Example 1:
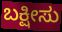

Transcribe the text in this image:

ಬಕ್ಷೀಸು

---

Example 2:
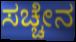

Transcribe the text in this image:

ಸಚ್ಚೇನ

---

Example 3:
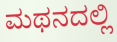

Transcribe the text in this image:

ಮಥನದಲ್ಲಿ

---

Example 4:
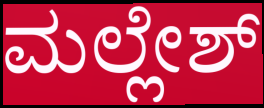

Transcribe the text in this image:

ಮಲ್ಲೇಶ್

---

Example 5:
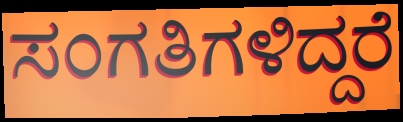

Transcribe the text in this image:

ಸಂಗತಿಗಳಿದ್ದರೆ